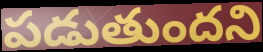
పడుతుందని